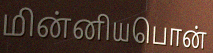
மின்னியபொன்